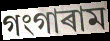
গংগাৰাম